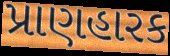
પ્રાણહારક